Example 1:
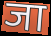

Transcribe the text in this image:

जा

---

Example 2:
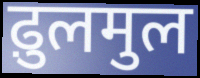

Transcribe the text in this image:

ढ़ुलमुल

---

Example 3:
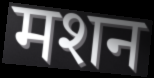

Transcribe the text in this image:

मशन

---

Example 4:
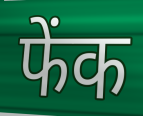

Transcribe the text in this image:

फेंक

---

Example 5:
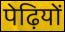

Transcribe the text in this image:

पेढ़ियों